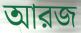
আরজ